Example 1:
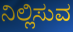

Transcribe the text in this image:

ನಿಲ್ಲಿಸುವ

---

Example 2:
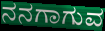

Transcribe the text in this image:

ನನಗಾಗುವ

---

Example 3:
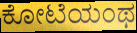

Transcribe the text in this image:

ಕೋಟೆಯಂಥ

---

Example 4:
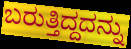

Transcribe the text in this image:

ಬರುತ್ತಿದ್ದದನ್ನು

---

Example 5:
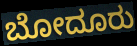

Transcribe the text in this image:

ಬೋದೂರು